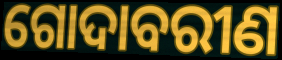
ଗୋଦାବରୀଣ